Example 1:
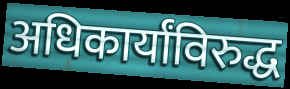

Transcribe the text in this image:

अधिकार्यांविरुद्ध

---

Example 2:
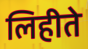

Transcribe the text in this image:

लिहीते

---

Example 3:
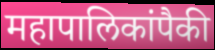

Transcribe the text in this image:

महापालिकांपैकी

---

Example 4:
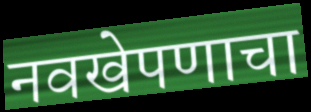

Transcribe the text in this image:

नवखेपणाचा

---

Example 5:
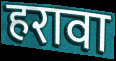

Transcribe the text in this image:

हरावा